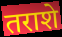
तराशे